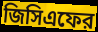
জিসিএফের